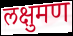
लक्षुमण